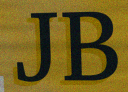
JB